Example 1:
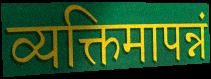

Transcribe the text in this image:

व्यक्तिमापन्नं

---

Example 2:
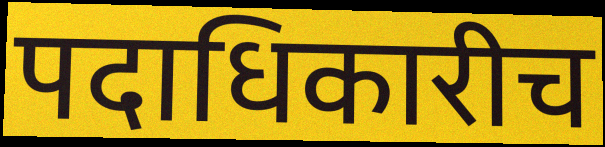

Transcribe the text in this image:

पदाधिकारीच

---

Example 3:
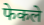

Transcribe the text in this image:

फेकले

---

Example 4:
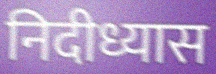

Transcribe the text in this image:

निदीध्यास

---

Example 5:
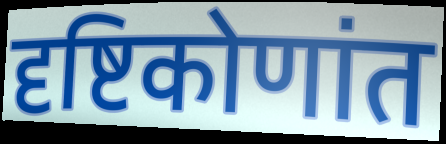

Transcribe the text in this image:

दृष्टिकोणांत